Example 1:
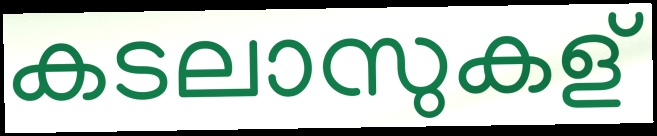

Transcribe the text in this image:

കടലാസുകള്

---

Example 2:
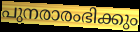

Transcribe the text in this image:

പുനരാരംഭിക്കും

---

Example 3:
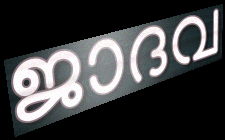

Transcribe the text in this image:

ജാദവ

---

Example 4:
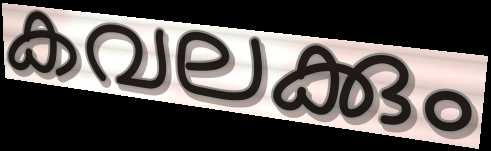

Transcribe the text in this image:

കവലക്കും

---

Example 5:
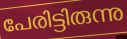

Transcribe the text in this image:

പേരിട്ടിരുന്നു